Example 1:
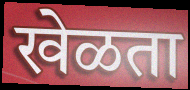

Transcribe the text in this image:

खेळता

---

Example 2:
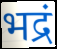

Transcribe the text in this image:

भद्रं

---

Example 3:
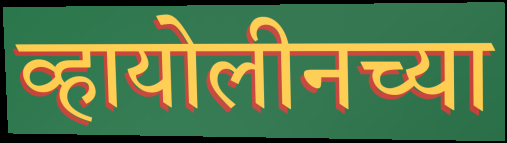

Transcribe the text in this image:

व्हायोलीनच्या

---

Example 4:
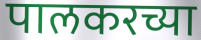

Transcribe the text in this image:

पालकरच्या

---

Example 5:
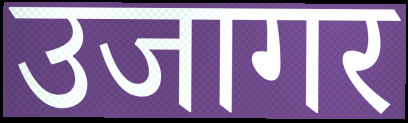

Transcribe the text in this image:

उजागर